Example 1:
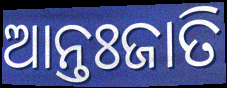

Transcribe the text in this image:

ଆନ୍ତଃଜାତି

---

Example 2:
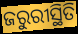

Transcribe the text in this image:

ଜରୁରୀସ୍ଥିତି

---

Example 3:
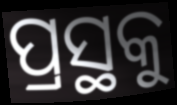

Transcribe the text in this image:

ପ୍ରସ୍ଥକୁ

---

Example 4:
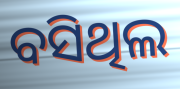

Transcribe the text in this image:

ବସିଥିଲ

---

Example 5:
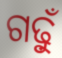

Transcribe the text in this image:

ଗଢ଼ୁଁ